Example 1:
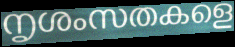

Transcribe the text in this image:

നൃശംസതകളെ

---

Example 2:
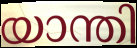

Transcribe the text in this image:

യാന്തി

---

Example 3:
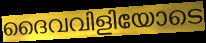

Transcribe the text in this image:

ദൈവവിളിയോടെ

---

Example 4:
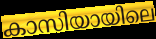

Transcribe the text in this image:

കാസിയായിലെ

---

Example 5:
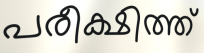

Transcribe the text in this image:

പരീക്ഷിത്ത്